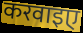
करवाइए